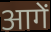
आगें